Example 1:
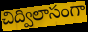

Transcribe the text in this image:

చిద్విలాసంగా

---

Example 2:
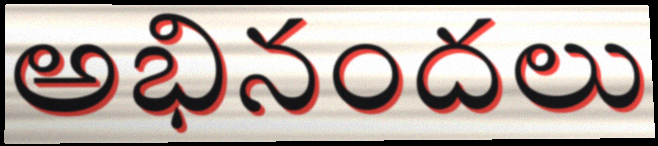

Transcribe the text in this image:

అభినందలు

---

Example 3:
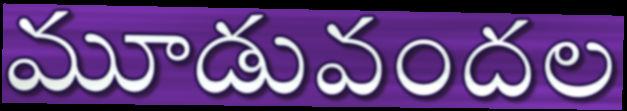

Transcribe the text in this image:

మూడువందల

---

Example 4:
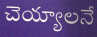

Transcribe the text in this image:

చెయ్యాలనే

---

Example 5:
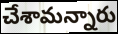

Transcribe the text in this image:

చేశామన్నారు